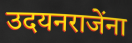
उदयनराजेंना